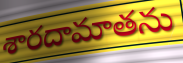
శారదామాతను